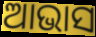
ଆଭାସ